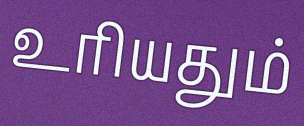
உரியதும்